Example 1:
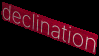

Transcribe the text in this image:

declination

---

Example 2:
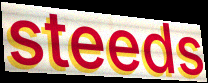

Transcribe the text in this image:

steeds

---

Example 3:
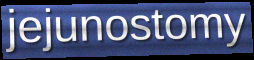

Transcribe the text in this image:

jejunostomy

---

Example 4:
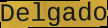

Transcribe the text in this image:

Delgado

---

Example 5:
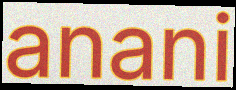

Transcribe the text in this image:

anani